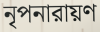
নৃপনারায়ণ